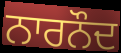
ਨਾਰਨੌਦ